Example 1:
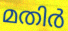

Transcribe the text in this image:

മതിർ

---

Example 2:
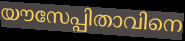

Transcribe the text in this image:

യൗസേപ്പിതാവിനെ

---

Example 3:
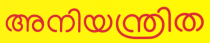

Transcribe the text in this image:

അനിയന്ത്രിത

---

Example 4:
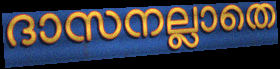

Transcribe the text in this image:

ദാസനല്ലാതെ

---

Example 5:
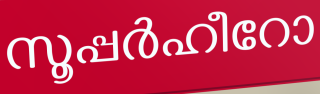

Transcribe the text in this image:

സൂപ്പർഹീറോ